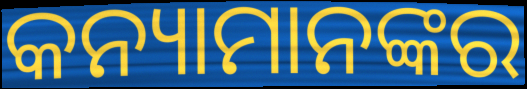
କନ୍ୟାମାନଙ୍କର